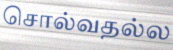
சொல்வதல்ல